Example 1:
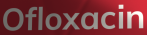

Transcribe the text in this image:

Ofloxacin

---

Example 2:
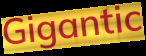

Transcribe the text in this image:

Gigantic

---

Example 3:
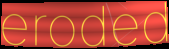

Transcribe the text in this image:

eroded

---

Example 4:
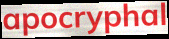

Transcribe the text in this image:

apocryphal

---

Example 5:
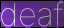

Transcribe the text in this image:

deaf